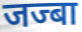
जज्बा